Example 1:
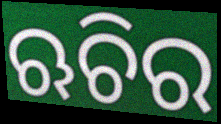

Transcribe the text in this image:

ଋଚିର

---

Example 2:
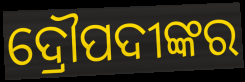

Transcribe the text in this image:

ଦ୍ରୌପଦୀଙ୍କର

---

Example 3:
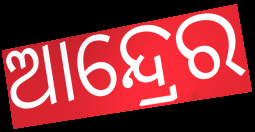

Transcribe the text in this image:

ଆନ୍ଦ୍ରେର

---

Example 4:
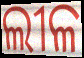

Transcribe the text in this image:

ଲୀଳ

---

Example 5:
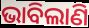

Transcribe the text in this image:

ଭାବିଲାଣି